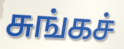
சுங்கச்